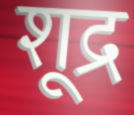
शूद्र